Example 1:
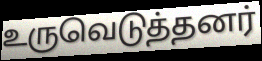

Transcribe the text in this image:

உருவெடுத்தனர்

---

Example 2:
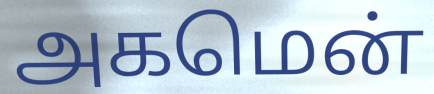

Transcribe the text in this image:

அகமென்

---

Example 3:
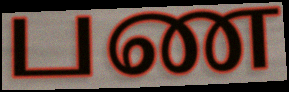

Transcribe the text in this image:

பண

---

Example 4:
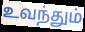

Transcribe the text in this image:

உவந்தும்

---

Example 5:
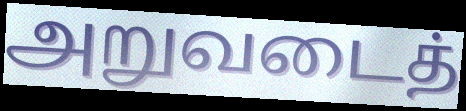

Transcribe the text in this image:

அறுவடைத்